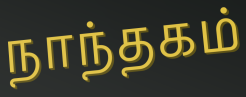
நாந்தகம்